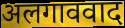
अलगाववाद